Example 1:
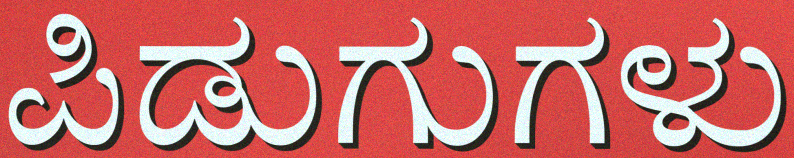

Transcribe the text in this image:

ಪಿಡುಗುಗಳು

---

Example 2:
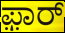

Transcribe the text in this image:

ಫ಼ಾರ್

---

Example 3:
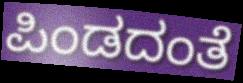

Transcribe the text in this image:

ಪಿಂಡದಂತೆ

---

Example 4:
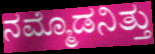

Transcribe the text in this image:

ನಮ್ಮೊಡನಿತ್ತು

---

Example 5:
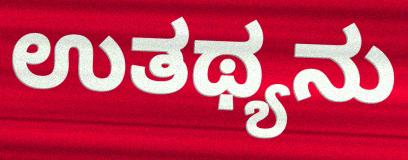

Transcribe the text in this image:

ಉತಥ್ಯನು